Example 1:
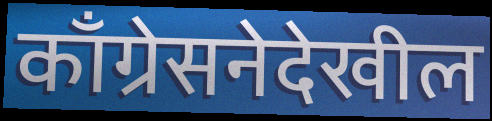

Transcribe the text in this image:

काँग्रेसनेदेखील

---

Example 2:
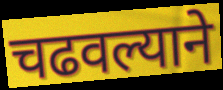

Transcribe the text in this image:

चढवल्याने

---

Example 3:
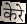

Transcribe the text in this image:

केरे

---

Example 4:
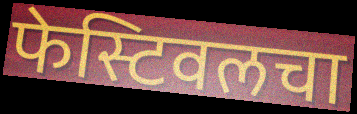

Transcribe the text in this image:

फेस्टिवलचा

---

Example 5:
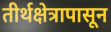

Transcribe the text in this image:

तीर्थक्षेत्रापासून